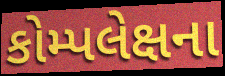
કોમ્પલેક્ષના